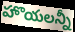
హొయలన్నీ